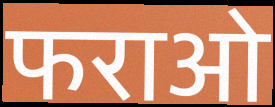
फराओ